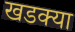
खडक्या